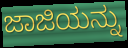
ಜಾಜಿಯನ್ನು